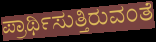
ಪ್ರಾರ್ಥಿಸುತ್ತಿರುವಂತೆ